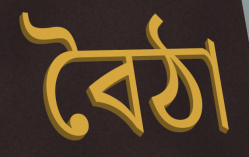
বৈঠা